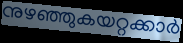
നുഴഞ്ഞുകയറ്റക്കാർ